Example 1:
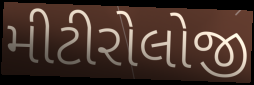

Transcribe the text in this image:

મીટીરોલોજી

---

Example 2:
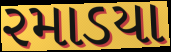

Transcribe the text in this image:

રમાડયા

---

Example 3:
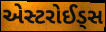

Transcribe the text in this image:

એસ્ટરોઈડ્સ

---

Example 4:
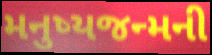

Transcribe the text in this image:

મનુષ્યજન્મની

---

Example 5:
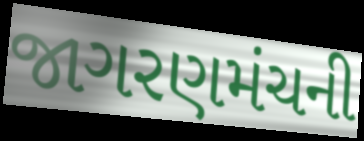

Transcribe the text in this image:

જાગરણમંચની